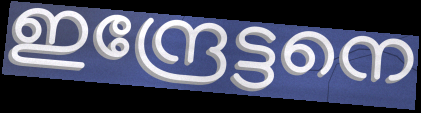
ഇന്ദ്രേട്ടനെ